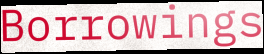
Borrowings